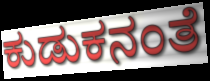
ಕುಡುಕನಂತೆ